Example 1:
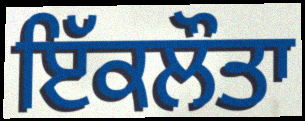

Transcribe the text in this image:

ਇੱਕਲੌਤਾ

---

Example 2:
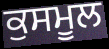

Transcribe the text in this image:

ਕੁਸਮੂਲ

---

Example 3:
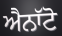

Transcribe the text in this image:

ਐਨਾੱਟੋ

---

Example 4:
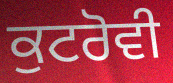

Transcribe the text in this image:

ਕੁਟਰੋਵੀ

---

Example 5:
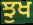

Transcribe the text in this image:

ਝੁਖ